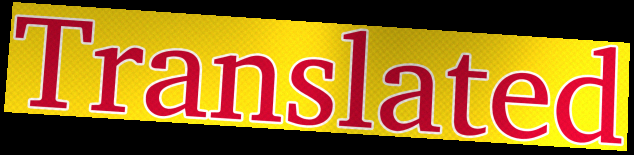
Translated